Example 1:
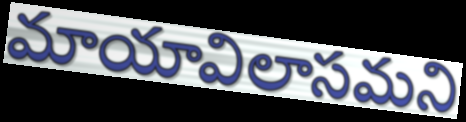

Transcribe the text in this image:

మాయావిలాసమని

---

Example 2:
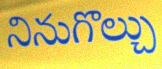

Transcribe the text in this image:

నినుగొల్చు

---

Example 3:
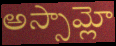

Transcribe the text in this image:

అస్సామ్లో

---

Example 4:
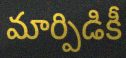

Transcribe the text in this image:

మార్పిడికీ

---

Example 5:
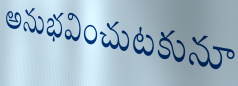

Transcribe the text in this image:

అనుభవించుటకునూ